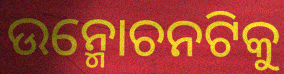
ଉନ୍ମୋଚନଟିକୁ